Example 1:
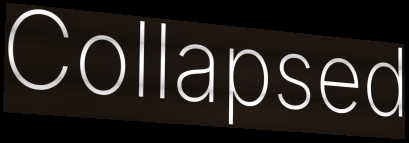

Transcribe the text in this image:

Collapsed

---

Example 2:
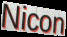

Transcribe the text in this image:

Nicon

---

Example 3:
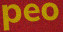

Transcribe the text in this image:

peo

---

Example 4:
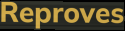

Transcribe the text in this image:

Reproves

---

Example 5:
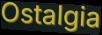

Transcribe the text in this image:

Ostalgia